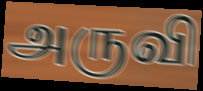
அருவி